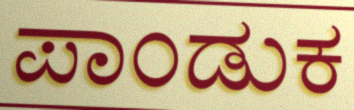
ಪಾಂಡುಕ